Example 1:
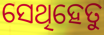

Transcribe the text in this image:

ସେଥିହେତୁ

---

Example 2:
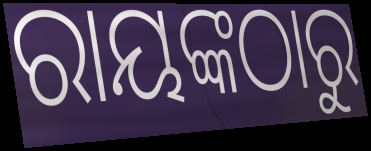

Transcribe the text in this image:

ରାୟଙ୍କଠାରୁ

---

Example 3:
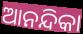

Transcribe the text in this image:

ଆନନ୍ଦିକା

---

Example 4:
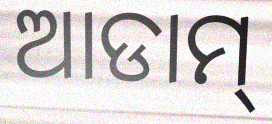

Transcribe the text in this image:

ଆଡାମ୍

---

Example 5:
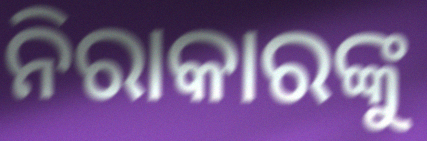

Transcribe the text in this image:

ନିରାକାରଙ୍କୁ